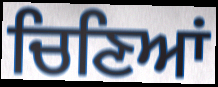
ਚਿਣਿਆਂ